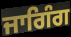
ਜਾਗਿੰਗ